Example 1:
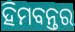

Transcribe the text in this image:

ହିମବନ୍ତର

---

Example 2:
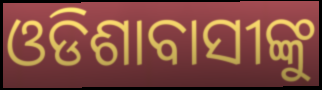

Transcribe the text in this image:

ଓଡିଶାବାସୀଙ୍କୁ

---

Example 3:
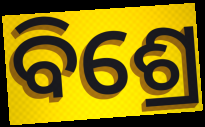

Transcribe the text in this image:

ବିଶ୍ରେ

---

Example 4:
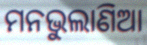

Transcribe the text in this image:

ମନଭୁଲାଣିଆ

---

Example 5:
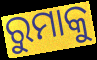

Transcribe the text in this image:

ରୁମାକୁ